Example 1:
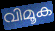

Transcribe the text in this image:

വിമൂക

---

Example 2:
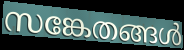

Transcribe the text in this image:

സങ്കേതങ്ങൾ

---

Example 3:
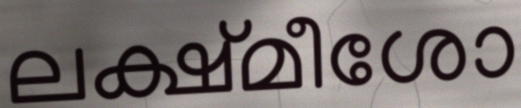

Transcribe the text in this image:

ലക്ഷ്മീശോ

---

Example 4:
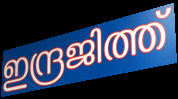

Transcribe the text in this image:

ഇന്ദ്രജിത്ത്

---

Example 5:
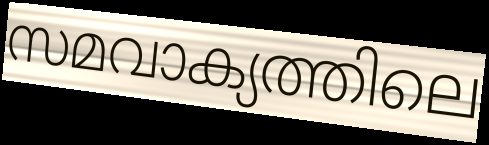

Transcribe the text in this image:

സമവാക്യത്തിലെ